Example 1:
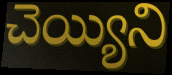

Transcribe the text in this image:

చెయ్యిని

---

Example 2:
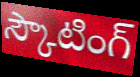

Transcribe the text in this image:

స్కౌటింగ్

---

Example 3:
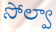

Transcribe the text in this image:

సోల్వా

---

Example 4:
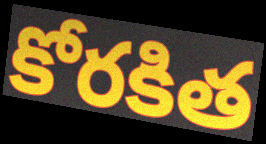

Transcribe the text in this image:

కోరకిత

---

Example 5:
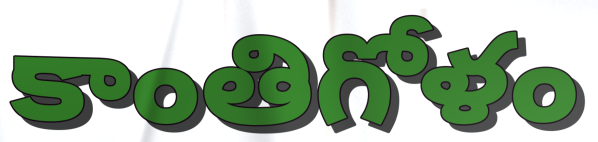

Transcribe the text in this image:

కాంతిగోళం